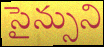
సైన్సుని